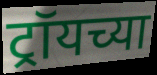
ट्रॉयच्या